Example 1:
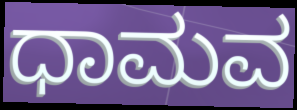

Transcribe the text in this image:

ಧಾಮವ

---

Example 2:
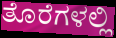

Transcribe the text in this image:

ತೊರೆಗಳಲ್ಲಿ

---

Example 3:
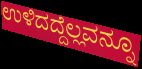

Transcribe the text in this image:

ಉಳಿದದ್ದೆಲ್ಲವನ್ನೂ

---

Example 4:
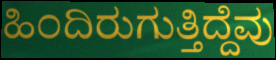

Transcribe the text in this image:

ಹಿಂದಿರುಗುತ್ತಿದ್ದೆವು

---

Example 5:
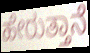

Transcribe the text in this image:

ಹೇರುತ್ತಾನೆ